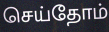
செய்தோம்